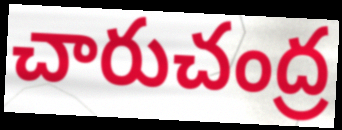
చారుచంద్ర